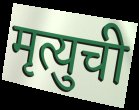
मृत्युची